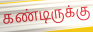
கண்டிருக்கு